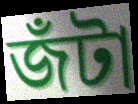
জঁটা